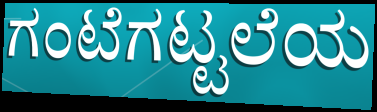
ಗಂಟೆಗಟ್ಟಲೆಯ